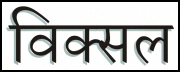
विक्सल